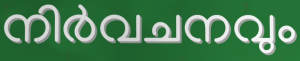
നിർവചനവും